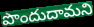
పొందుదామని